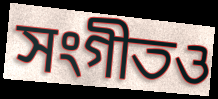
সংগীতও